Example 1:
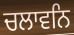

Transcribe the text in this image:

ਚਲਾਵਨਿ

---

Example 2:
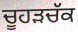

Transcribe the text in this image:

ਚੂਹਡ਼ਚੱਕ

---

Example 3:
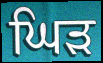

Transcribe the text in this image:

ਘਿੜ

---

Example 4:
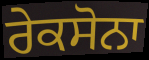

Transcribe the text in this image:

ਰੇਕਸੋਨਾ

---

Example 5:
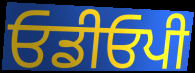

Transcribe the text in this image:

ਓਡੀਓਪੀ